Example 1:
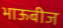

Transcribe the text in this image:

भाऊबीज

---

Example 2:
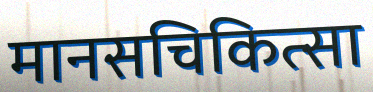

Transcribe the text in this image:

मानसचिकित्सा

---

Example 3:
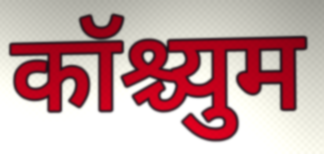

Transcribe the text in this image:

कॉश्च्युम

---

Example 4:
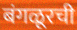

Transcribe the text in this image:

बंगळूरची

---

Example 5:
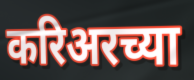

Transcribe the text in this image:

करिअरच्या